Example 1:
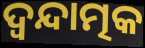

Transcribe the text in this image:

ଦ୍ୱନ୍ଦାତ୍ମକ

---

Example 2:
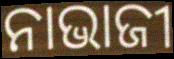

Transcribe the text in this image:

ନାଭାଜୀ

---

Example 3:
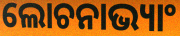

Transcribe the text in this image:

ଲୋଚନାଭ୍ୟାଂ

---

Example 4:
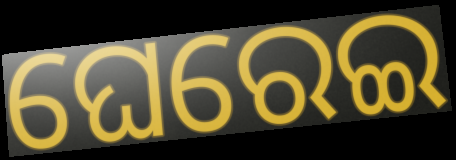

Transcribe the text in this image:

ଘେରେଇ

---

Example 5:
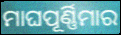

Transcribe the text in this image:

ମାଘପୂର୍ଣ୍ଣିମାର